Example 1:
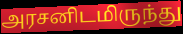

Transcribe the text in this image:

அரசனிடமிருந்து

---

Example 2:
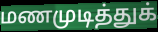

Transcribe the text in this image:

மணமுடித்துக்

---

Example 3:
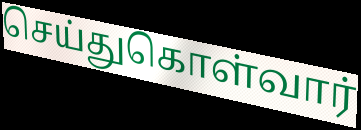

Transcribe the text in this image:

செய்துகொள்வார்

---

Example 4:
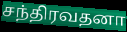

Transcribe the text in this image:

சந்திரவதனா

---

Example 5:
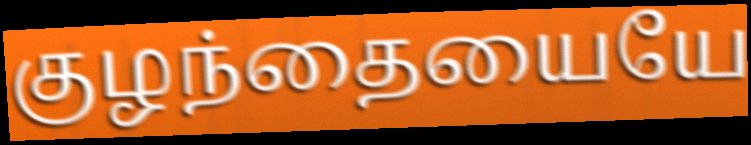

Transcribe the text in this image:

குழந்தையையே